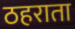
ठहराता